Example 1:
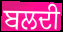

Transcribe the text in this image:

ਬਲਦੀ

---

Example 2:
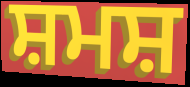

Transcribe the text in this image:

ਸ਼ਮਸ਼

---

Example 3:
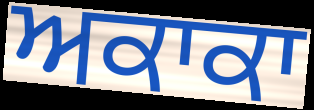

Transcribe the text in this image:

ਅਕਾਕਾ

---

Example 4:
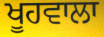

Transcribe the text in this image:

ਖੂਹਵਾਲਾ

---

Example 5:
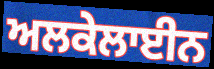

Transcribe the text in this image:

ਅਲਕੇਲਾਈਨ